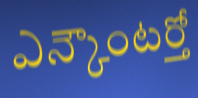
ఎన్కౌంటర్తో